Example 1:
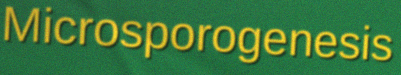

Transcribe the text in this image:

Microsporogenesis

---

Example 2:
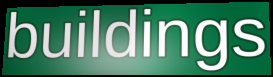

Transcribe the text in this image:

buildings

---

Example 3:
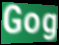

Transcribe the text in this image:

Gog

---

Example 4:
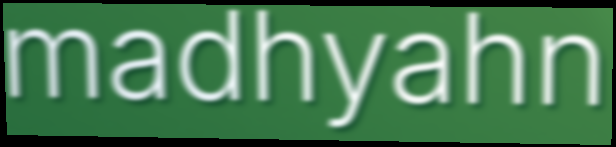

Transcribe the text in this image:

madhyahn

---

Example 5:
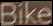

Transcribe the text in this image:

Bike